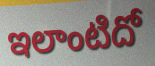
ఇలాంటిదో